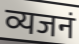
व्यजनं